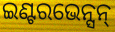
ଇଣ୍ଟରଭେନ୍ସନ୍